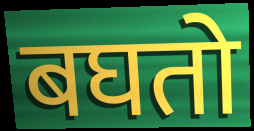
बघतो